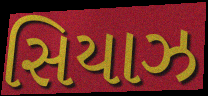
સિયાઝ